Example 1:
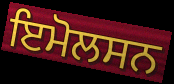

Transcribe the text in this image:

ਇਮੋਲਸਨ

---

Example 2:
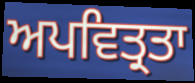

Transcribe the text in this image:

ਅਪਵਿਤ੍ਰਤਾ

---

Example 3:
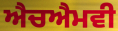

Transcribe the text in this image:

ਐਚਐਮਵੀ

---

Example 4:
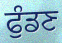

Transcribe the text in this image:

ਫੁੰਡਣ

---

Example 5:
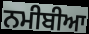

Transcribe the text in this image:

ਨਮੀਬੀਆ